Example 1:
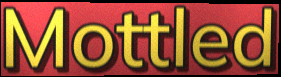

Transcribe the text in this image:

Mottled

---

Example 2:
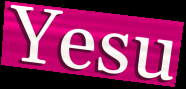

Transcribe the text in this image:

Yesu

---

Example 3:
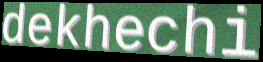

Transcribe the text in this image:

dekhechi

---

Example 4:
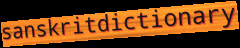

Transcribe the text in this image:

sanskritdictionary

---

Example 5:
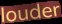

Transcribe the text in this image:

louder